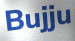
Bujju